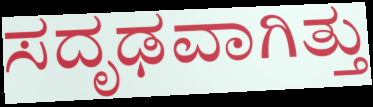
ಸದೃಢವಾಗಿತ್ತು